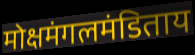
मोक्षमंगलमंडिताय